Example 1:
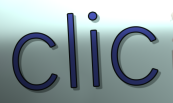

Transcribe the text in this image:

clic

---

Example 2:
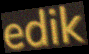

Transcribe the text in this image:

edik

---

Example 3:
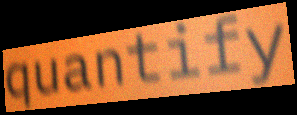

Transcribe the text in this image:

quantify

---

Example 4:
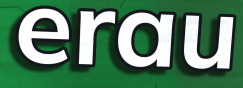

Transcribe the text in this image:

erau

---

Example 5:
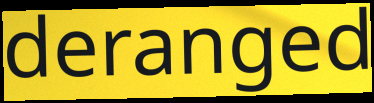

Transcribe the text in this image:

deranged